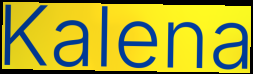
Kalena